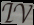
IV